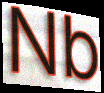
Nb